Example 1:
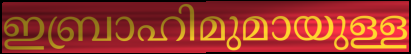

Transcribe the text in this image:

ഇബ്രാഹിമുമായുള്ള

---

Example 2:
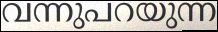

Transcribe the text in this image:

വന്നുപറയുന്ന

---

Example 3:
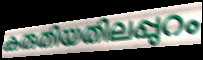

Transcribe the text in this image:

കരുതിയതിലപ്പുറം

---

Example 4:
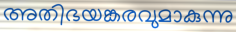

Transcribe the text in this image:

അതിഭയങ്കരവുമാകുന്നു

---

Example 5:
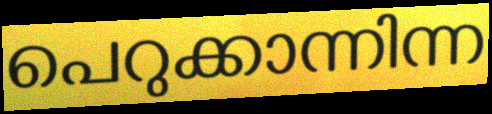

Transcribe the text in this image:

പെറുക്കാന്നിന്ന